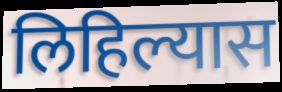
लिहिल्यास